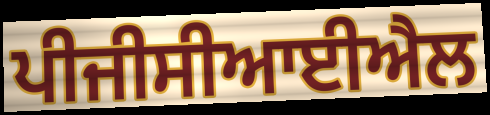
ਪੀਜੀਸੀਆਈਐਲ